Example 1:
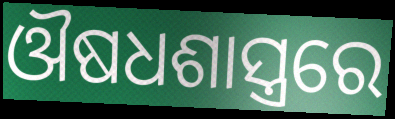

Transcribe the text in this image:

ଔଷଧଶାସ୍ତ୍ରରେ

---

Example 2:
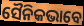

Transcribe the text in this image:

ସୈନିକଭାବେ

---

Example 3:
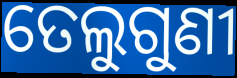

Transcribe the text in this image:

ତେଲୁଗୁଣୀ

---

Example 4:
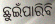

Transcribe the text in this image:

ଛୁଇଁପାରିବି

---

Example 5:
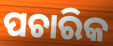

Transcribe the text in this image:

ପଚାରିକ